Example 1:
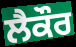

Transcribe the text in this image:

ਲੈਕੌਰ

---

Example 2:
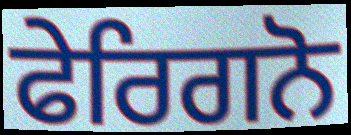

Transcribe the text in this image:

ਫੇਰਿਗਨੋ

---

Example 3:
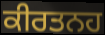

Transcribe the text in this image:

ਕੀਰਤਨਹ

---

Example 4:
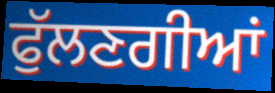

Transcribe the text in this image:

ਫੁੱਲਣਗੀਆਂ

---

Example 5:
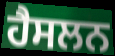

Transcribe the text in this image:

ਹੈਸਲਨ